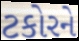
ટકોરને